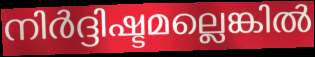
നിർദ്ദിഷ്ടമല്ലെങ്കിൽ